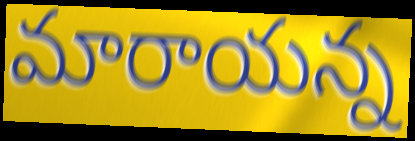
మారాయన్న